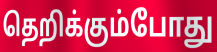
தெறிக்கும்போது